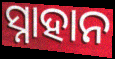
ସ୍ନାହାନ